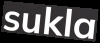
sukla